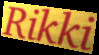
Rikki